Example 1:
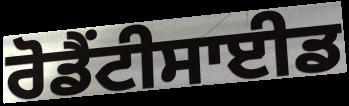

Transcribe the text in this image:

ਰੋਡੈਂਟੀਸਾਈਡ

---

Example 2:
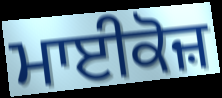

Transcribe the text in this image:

ਮਾਈਕੋਜ਼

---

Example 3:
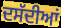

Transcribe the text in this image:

ਦਸੱਦੀਆਂ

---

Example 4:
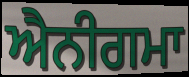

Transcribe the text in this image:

ਐਨੀਗਮਾ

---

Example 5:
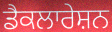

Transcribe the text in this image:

ਡੈਕਲਾਰੇਸ਼ਨ